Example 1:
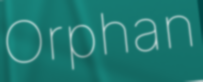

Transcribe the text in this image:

Orphan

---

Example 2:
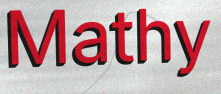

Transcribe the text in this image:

Mathy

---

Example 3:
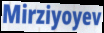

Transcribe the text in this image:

Mirziyoyev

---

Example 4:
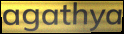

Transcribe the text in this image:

agathya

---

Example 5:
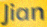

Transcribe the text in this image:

Jian